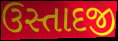
ઉસ્તાદજી